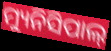
ମ୍ୟୁନିସିପାଲ୍